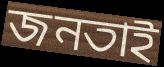
জনতাই